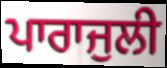
ਪਾਰਾਜੁਲੀ